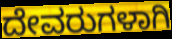
ದೇವರುಗಳಾಗಿ